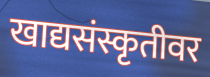
खाद्यसंस्कृतीवर